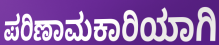
ಪರಿಣಾಮಕಾರಿಯಾಗಿ